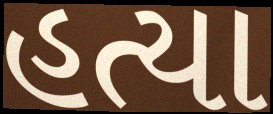
હત્યા